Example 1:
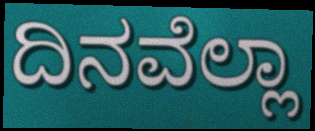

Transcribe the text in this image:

ದಿನವೆಲ್ಲಾ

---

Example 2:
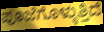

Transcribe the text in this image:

ಪೂಜೆಗೊಳ್ಳುತ್ತಿದೆ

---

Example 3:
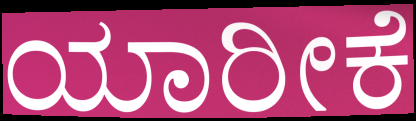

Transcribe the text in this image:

ಯಾರೀಕೆ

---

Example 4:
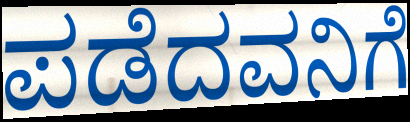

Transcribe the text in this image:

ಪಡೆದವನಿಗೆ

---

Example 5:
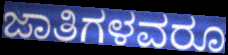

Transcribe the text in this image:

ಜಾತಿಗಳವರೂ